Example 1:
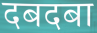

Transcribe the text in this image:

दबदबा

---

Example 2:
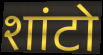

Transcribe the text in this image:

शांटो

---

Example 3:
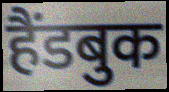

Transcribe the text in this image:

हैंडबुक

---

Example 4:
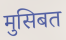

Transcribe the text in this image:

मुसिबत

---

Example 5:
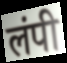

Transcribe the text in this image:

लंपी